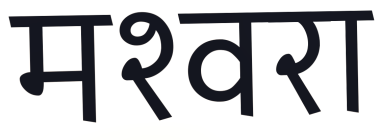
मश्वरा